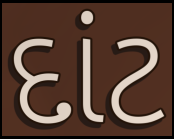
દાંટ